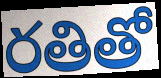
రతితో